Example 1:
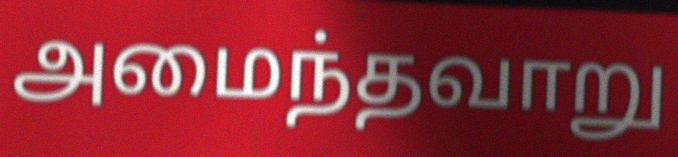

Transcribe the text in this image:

அமைந்தவாறு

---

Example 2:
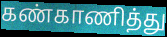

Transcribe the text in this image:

கண்காணித்து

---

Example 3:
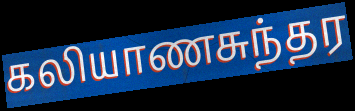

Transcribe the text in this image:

கலியாணசுந்தர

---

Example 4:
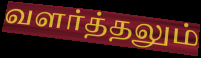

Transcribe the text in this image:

வளர்த்தலும்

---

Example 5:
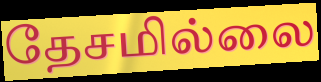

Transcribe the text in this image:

தேசமில்லை